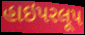
હાઇપરલૂપ